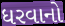
ધરવાનો